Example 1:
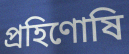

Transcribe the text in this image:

প্রহিণোষি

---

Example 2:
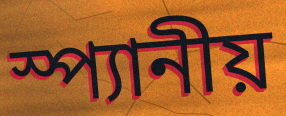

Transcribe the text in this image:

স্প্যানীয়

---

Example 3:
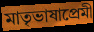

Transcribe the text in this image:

মাতৃভাষাপ্রেমী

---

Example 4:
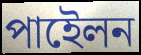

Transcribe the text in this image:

পাইেলন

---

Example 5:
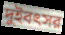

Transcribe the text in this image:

দুইবৎসর